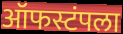
ऑफस्टंपला